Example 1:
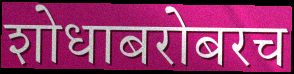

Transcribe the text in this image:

शोधाबरोबरच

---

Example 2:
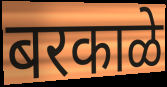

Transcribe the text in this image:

बरकाळे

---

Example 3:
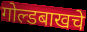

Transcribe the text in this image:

गोल्डबाखचे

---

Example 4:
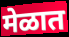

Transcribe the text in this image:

मेळात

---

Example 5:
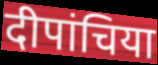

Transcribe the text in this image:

दीपांचिया